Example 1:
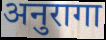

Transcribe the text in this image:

अनुरागा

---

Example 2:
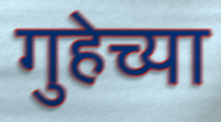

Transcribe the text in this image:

गुहेच्या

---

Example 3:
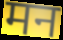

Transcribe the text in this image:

मन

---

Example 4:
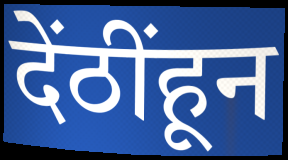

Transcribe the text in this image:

देंठींहून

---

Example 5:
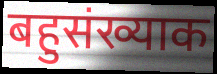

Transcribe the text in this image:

बहुसंख्याक